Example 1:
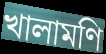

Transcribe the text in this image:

খালামণি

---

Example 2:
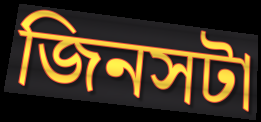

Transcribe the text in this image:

জিনসটা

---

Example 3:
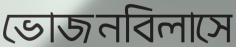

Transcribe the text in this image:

ভোজনবিলাসে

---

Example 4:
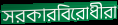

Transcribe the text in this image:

সরকারবিরোধীরা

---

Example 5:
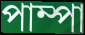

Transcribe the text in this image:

পাম্পা